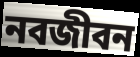
নবজীবন